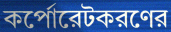
কর্পোরেটকরণের